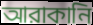
আরাকানি